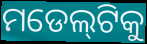
ମଡେଲ୍‌ଟିକୁ